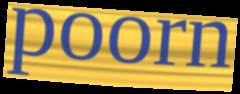
poorn